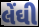
લેંઘી